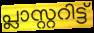
പ്ലാസ്റ്ററിട്ട്